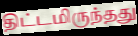
திட்டமிருந்தது